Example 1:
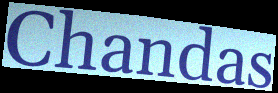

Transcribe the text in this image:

Chandas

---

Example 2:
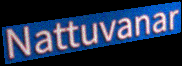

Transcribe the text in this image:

Nattuvanar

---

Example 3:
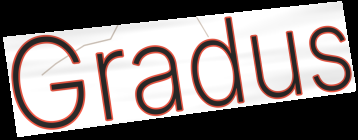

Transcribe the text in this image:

Gradus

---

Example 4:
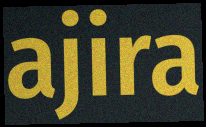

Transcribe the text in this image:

ajira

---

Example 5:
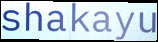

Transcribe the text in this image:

shakayu